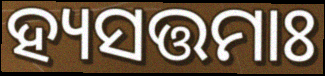
ହ୍ୟସତ୍ତମାଃ